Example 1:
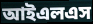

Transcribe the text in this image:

আইএলএস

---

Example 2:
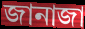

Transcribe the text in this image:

জানাজা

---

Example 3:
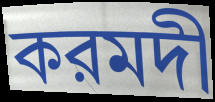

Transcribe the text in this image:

করমদী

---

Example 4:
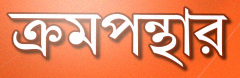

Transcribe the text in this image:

ক্রমপন্থার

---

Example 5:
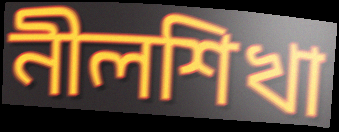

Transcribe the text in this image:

নীলশিখা